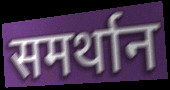
समर्थान